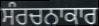
ਸੰਰਚਨਾਕਾਰ